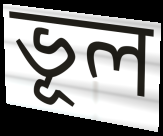
ভূল